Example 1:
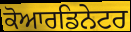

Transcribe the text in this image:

ਕੋਆਰਡਿਨੇਟਰ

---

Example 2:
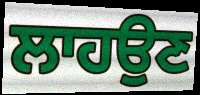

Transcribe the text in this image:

ਲਾਹਉਣ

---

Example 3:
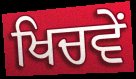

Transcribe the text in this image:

ਖਿਚਵੇਂ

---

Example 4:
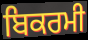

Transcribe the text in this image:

ਬਿਕਰਮੀ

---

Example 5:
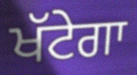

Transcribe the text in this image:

ਖੱਟੇਗਾ